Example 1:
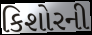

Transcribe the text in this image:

કિશોરની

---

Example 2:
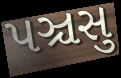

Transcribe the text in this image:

પઞ્ચસુ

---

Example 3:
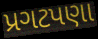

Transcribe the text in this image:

પ્રગટપણા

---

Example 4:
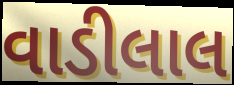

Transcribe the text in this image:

વાડીલાલ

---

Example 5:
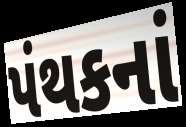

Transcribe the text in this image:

પંથકનાં